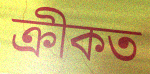
ক্ৰীকত